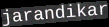
jarandikar